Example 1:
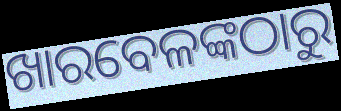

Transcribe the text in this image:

ଖାରବେଳଙ୍କଠାରୁ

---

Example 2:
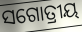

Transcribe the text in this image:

ସଗୋତ୍ରୀୟ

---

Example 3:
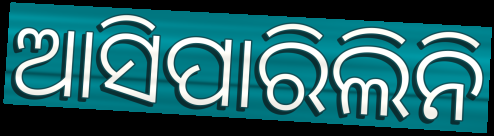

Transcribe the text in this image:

ଆସିପାରିଲିନି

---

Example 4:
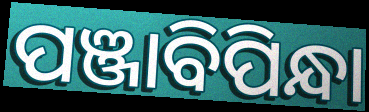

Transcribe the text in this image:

ପଞ୍ଜାବିପିନ୍ଧା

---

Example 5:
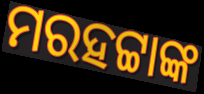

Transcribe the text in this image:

ମରହଟ୍ଟାଙ୍କ